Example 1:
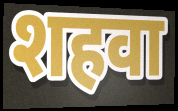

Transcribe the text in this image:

शहवा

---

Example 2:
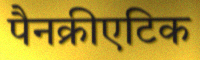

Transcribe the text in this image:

पैनक्रीएटिक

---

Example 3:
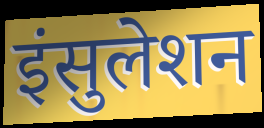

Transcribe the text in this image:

इंसुलेशन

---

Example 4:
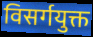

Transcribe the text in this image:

विसर्गयुक्त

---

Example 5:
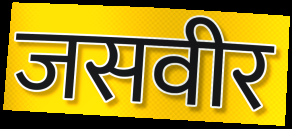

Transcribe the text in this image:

जसवीर